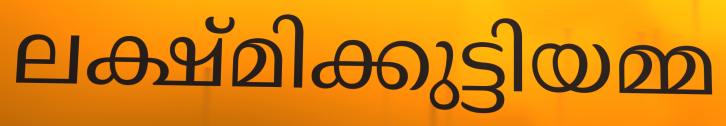
ലക്ഷ്മിക്കുട്ടിയമ്മ